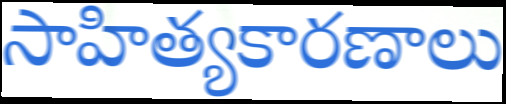
సాహిత్యకారణాలు